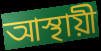
আস্থায়ী